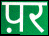
प़र